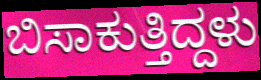
ಬಿಸಾಕುತ್ತಿದ್ದಳು